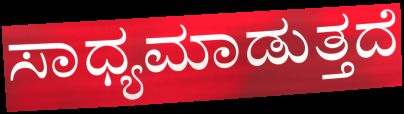
ಸಾಧ್ಯಮಾಡುತ್ತದೆ